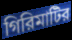
গিরিমাটির